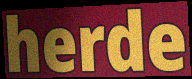
herde